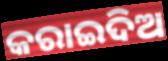
କରାଇଦିଅ